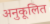
अनुकूलित